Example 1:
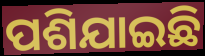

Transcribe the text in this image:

ପଶିଯାଇଛି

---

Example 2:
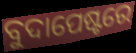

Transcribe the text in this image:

ବୁଦାପେଷ୍ଟରେ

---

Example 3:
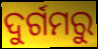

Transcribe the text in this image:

ଦୁର୍ଗମରୁ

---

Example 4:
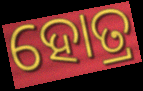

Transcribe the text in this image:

ହୋତ୍ର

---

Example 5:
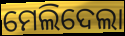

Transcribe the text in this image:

ମେଲିଦେଲା